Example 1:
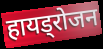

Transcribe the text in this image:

हायड्रोजन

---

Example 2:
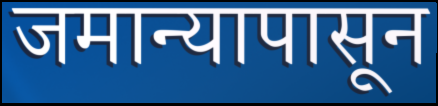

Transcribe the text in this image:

जमान्यापासून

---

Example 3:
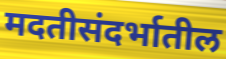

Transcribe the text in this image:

मदतीसंदर्भातील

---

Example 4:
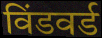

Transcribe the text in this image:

विंडवर्ड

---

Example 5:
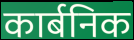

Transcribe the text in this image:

कार्बनिक